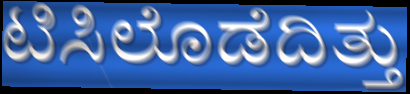
ಟಿಸಿಲೊಡೆದಿತ್ತು